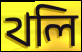
থলি